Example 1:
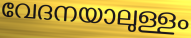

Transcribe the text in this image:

വേദനയാലുള്ളം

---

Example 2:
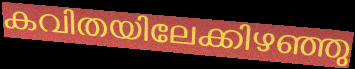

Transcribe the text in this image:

കവിതയിലേക്കിഴഞ്ഞു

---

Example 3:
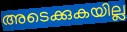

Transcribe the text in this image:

അടെക്കുകയില്ല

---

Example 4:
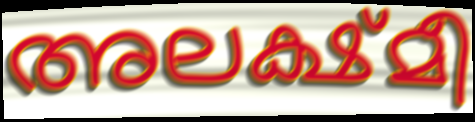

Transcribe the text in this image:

അലക്ഷ്മീ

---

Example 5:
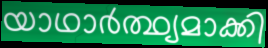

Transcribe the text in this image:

യാഥാർത്ഥ്യമാക്കി